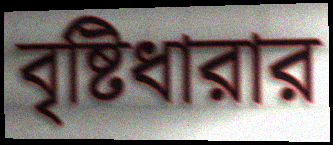
বৃষ্টিধারার